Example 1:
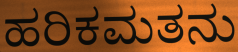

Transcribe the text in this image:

ಹರಿಕಮತನು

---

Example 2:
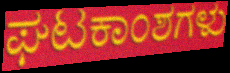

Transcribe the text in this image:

ಘಟಕಾಂಶಗಳು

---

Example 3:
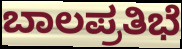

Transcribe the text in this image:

ಬಾಲಪ್ರತಿಭೆ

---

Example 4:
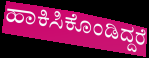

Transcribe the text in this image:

ಹಾಕಿಸಿಕೊಂಡಿದ್ದರೆ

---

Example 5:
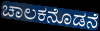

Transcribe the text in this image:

ಚಾಲಕನೊಡನೆ